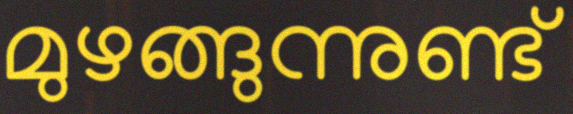
മുഴങ്ങുന്നുണ്ട്